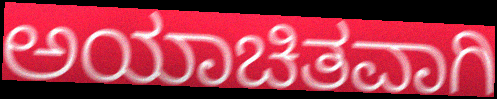
ಅಯಾಚಿತವಾಗಿ